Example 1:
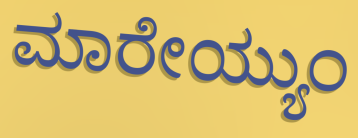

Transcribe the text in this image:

ಮಾರೇಯ್ಯುಂ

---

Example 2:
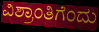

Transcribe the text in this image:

ವಿಶ್ರಾಂತಿಗೆಂದು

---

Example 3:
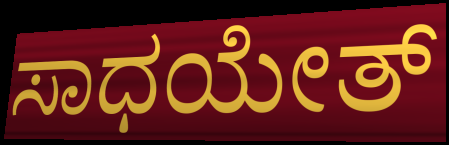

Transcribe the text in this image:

ಸಾಧಯೇತ್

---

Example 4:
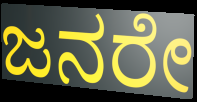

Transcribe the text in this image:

ಜನರೇ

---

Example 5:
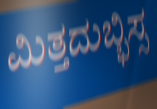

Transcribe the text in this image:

ಮಿತ್ತದುಬ್ಭಿಸ್ಸ